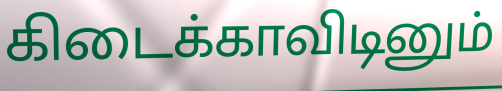
கிடைக்காவிடினும்